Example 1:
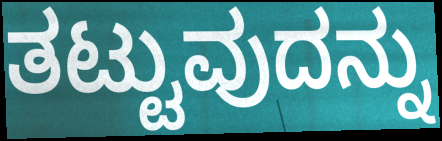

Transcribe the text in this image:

ತಟ್ಟುವುದನ್ನು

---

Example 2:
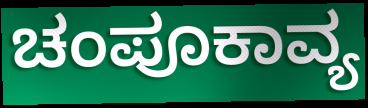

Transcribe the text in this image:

ಚಂಪೂಕಾವ್ಯ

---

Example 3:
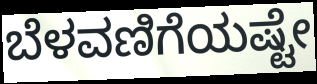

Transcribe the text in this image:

ಬೆಳವಣಿಗೆಯಷ್ಟೇ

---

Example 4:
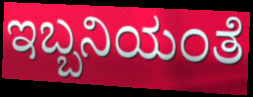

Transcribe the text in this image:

ಇಬ್ಬನಿಯಂತೆ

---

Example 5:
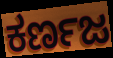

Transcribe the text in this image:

ಕರ್ಣಜ